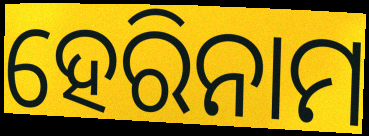
ହେରିନାମ